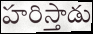
హరిస్తాడు